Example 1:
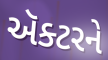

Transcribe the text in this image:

ઍક્ટરને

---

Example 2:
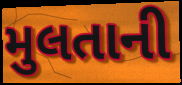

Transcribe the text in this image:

મુલતાની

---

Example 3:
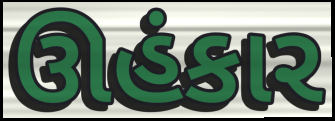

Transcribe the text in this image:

ઊહંકાર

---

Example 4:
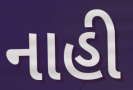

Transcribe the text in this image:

નાહી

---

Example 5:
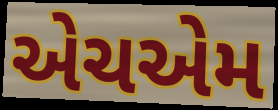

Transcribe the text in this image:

એચએમ